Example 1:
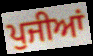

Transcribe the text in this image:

ਪੁਜੀਆਂ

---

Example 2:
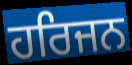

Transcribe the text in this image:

ਹਰਿਜਨ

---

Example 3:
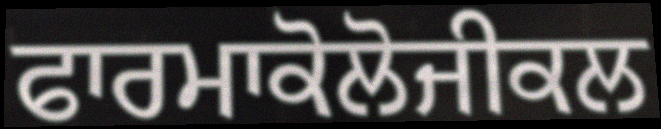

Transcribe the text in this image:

ਫਾਰਮਾਕੋਲੋਜੀਕਲ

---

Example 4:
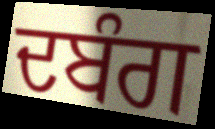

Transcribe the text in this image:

ਦਬੰਗ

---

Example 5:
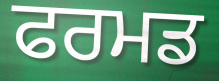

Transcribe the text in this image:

ਫਰਮਡ